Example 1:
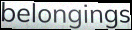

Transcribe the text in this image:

belongings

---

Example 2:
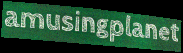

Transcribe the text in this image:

amusingplanet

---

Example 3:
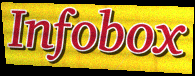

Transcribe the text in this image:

Infobox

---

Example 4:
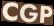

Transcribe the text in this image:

CGP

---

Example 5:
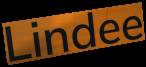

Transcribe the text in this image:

Lindee